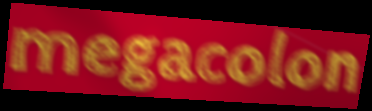
megacolon